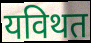
यविथत